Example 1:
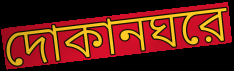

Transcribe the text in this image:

দোকানঘরে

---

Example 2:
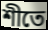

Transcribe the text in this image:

শীতে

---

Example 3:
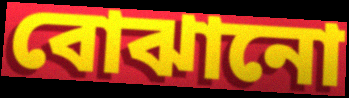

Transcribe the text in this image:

বোঝানো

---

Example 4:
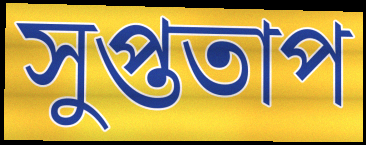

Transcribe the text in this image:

সুপ্ততাপ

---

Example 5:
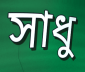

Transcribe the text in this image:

সাধু